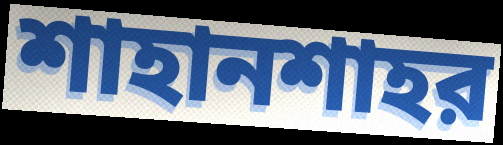
শাহানশাহর